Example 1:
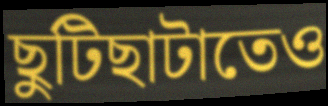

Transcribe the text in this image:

ছুটিছাটাতেও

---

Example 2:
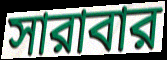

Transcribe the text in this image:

সারাবার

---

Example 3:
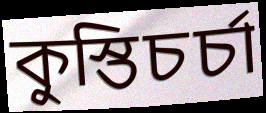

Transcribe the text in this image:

কুস্তিচর্চা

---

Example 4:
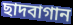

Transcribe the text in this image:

ছাদবাগান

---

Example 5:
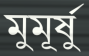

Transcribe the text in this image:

মুমূর্ষু